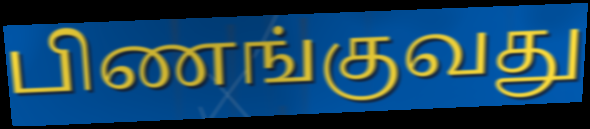
பிணங்குவது